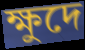
ক্ষুদে